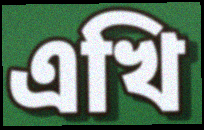
এখি